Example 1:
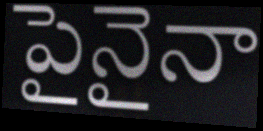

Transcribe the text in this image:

పైనైనా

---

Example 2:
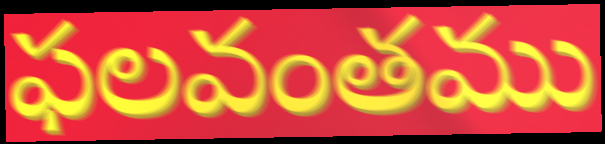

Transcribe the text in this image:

ఫలవంతము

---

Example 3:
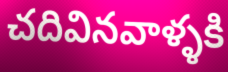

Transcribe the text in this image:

చదివినవాళ్ళకి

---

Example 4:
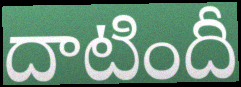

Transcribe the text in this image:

దాటిందీ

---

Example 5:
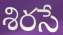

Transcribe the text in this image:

శిరసే